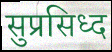
सुप्रसिध्द